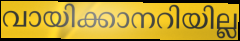
വായിക്കാനറിയില്ല